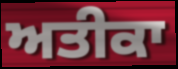
ਅਤੀਕਾ